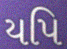
યપિ